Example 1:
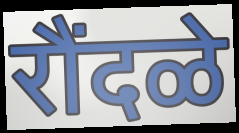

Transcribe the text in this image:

रौंदळे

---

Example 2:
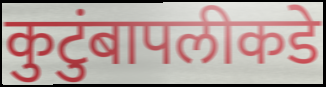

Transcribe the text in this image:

कुटुंबापलीकडे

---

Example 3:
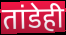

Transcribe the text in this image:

तांडेही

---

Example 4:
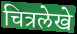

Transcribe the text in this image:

चित्रलेखे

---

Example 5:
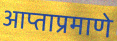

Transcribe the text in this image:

आप्ताप्रमाणे